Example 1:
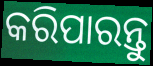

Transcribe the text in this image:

କରିପାରନ୍ତୁ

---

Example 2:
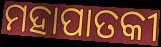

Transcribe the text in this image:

ମହାପାତକୀ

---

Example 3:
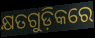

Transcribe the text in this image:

କ୍ଷତଗୁଡ଼ିକରେ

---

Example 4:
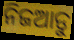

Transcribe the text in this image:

ନିଜଆଡୁ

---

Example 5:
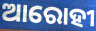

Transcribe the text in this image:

ଆରୋହୀ